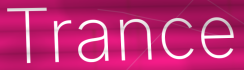
Trance